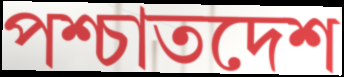
পশ্চাতদেশ